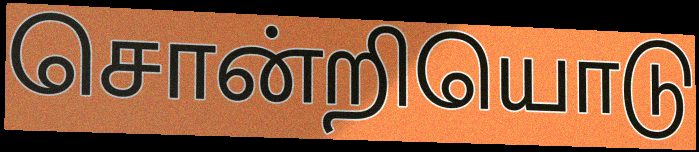
சொன்றியொடு